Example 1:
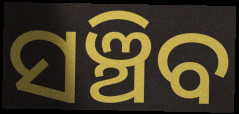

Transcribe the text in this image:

ସଞ୍ଚିବ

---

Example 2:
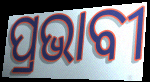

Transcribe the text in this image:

ପ୍ରଭାବୀ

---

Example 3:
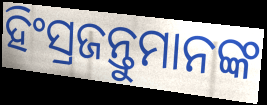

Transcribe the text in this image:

ହିଂସ୍ରଜନ୍ତୁମାନଙ୍କ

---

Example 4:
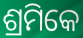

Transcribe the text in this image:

ଶ୍ରମିକେ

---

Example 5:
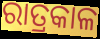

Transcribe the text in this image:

ରାତ୍ରକାଳ